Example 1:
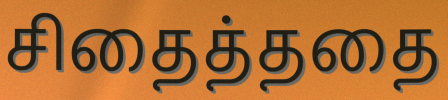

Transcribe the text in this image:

சிதைத்ததை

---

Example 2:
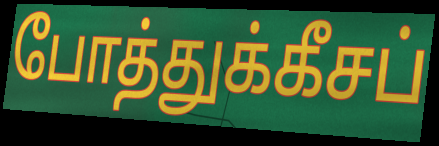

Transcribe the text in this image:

போத்துக்கீசப்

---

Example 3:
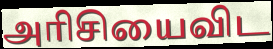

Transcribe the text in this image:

அரிசியைவிட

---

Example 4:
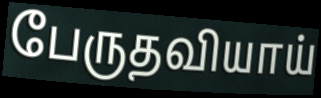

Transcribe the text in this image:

பேருதவியாய்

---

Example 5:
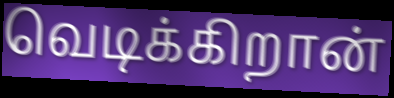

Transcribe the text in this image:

வெடிக்கிறான்